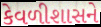
કેવળીશાસને